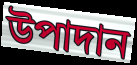
উপাদান